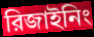
রিজাইনিং